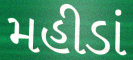
મહીડાં